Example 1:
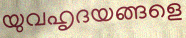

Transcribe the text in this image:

യുവഹൃദയങ്ങളെ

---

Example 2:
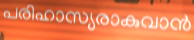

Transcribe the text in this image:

പരിഹാസ്യരാകുവാൻ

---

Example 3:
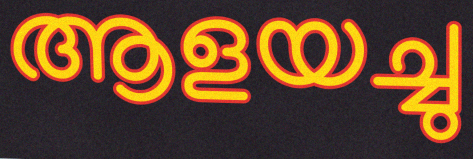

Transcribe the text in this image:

ആളയച്ചു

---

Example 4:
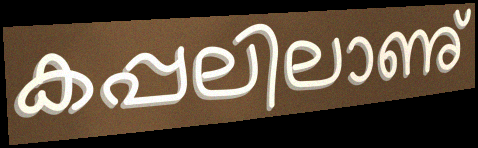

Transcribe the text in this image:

കപ്പലിലാണു്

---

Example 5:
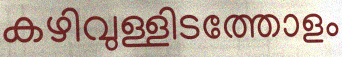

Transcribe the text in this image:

കഴിവുള്ളിടത്തോളം